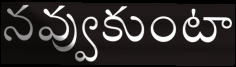
నవ్వుకుంటా